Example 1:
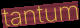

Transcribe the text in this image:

tantum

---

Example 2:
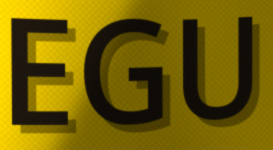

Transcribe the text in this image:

EGU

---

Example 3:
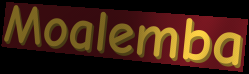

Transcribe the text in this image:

Moalemba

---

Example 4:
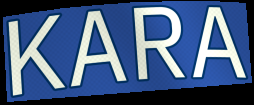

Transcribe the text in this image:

KARA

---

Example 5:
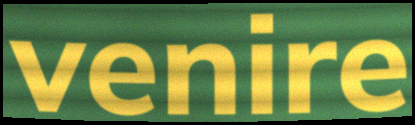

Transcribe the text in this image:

venire